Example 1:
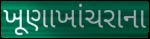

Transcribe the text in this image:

ખૂણાખાંચરાના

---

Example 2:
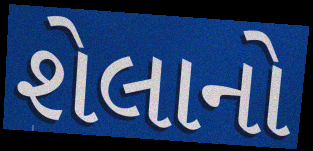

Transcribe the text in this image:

શેલાનો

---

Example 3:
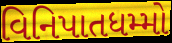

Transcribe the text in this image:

વિનિપાતધમ્મો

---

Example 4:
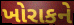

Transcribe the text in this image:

ખોરાકને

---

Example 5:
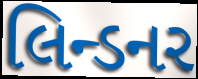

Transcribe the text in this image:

લિન્ડનર